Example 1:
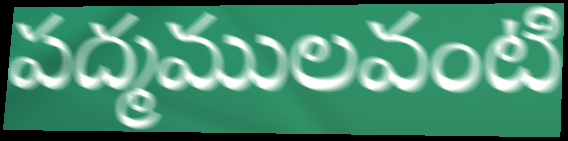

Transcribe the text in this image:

పద్మములవంటి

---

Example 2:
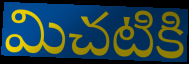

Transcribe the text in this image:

మిచటికి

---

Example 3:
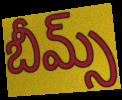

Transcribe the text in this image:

బీమ్స్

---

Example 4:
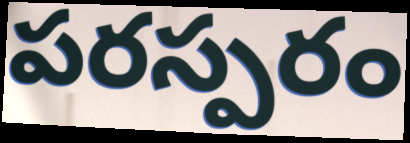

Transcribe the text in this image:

పరస్పరం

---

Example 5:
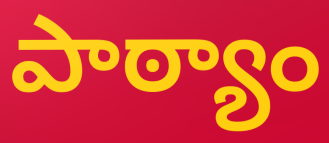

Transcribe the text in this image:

పాఠ్యాం